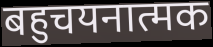
बहुचयनात्मक